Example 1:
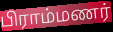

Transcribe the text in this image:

பிராம்மணர்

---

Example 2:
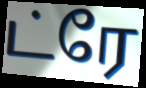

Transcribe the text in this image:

ட்ரே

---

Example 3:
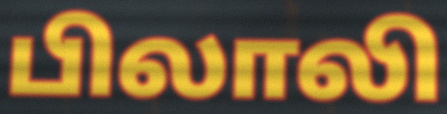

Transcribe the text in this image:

பிலாலி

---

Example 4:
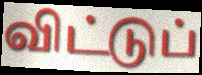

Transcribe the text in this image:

விட்டுப்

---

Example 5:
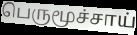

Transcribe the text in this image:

பெருமூச்சாய்